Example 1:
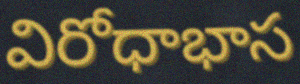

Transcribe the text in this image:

విరోధాభాస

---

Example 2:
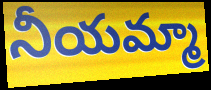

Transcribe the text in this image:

నీయమ్మా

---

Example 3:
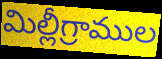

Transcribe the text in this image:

మిల్లీగ్రాముల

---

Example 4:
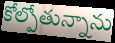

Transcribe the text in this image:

కోల్పోతున్నాను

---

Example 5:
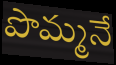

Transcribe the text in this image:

పొమ్మనే